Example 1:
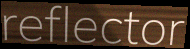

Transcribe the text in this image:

reflector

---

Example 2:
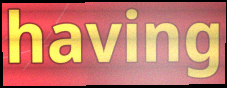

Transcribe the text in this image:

having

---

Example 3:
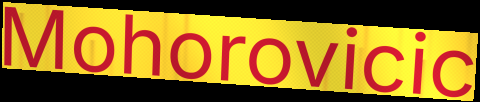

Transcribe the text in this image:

Mohorovicic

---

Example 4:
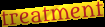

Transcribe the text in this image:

treatment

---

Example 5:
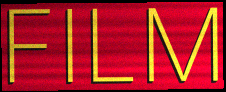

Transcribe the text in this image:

FILM